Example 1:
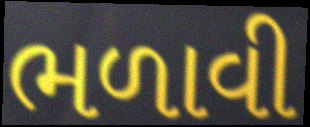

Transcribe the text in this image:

ભળાવી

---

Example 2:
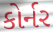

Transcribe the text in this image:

કોર્નર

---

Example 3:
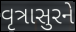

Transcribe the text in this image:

વૃત્રાસુરને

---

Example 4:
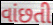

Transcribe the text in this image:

વાંછતી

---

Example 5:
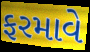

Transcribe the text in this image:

ફરમાવે